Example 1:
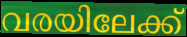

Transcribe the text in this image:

വരയിലേക്ക്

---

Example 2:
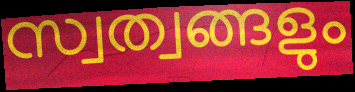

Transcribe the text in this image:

സ്വത്വങ്ങളും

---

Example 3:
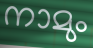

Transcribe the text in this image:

നാമും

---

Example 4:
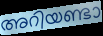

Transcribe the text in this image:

അറിയണ്ടാ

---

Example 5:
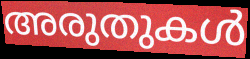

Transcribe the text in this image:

അരുതുകൾ